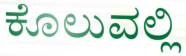
ಕೊಲುವಲ್ಲಿ